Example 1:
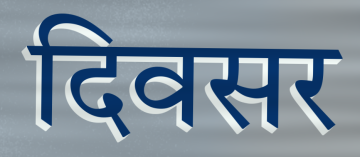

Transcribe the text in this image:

दिवसर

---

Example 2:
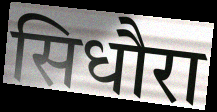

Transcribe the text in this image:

सिधौरा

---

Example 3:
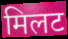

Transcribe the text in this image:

मिलट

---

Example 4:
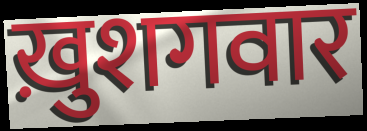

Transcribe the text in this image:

ख़ुशगवार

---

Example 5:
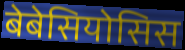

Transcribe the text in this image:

बेबेसियोसिस